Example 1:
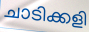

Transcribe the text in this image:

ചാടിക്കളി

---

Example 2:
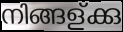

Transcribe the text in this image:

നിങ്ങള്ക്കു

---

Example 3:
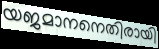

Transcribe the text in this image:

യജമാനനെതിരായി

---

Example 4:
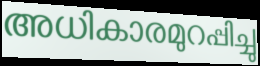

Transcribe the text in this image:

അധികാരമുറപ്പിച്ചു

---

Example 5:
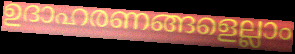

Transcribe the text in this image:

ഉദാഹരണങ്ങളെല്ലാം